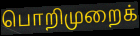
பொறிமுறைக்